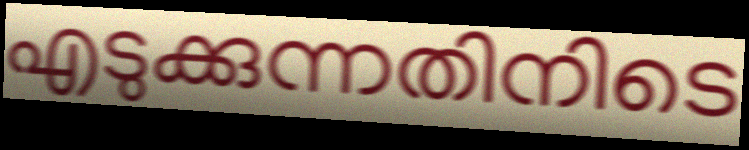
എടുക്കുന്നതിനിടെ